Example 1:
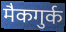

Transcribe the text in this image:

मैकगुर्क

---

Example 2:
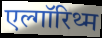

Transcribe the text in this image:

एल्गॉरिथ्म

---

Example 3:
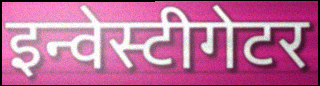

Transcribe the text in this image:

इन्वेस्टीगेटर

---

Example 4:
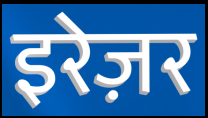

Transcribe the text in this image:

इरेज़र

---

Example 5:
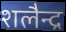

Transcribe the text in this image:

शलैन्द्र